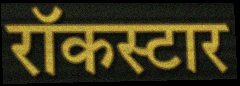
रॉकस्टार